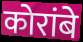
कोरांबे